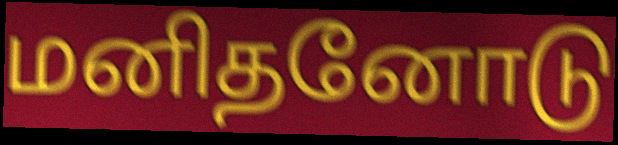
மனிதனோடு